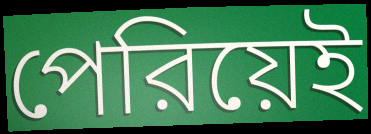
পেরিয়েই